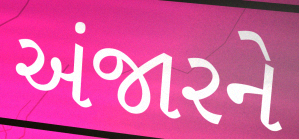
અંજારને